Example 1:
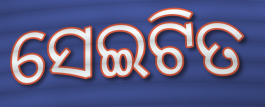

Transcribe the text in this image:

ସେଇଟିତ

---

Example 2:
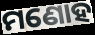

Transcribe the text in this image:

ମଣୋହ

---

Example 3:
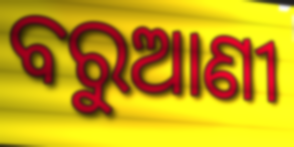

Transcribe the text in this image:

ବରୁଆଣୀ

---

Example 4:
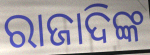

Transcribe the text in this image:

ରାଜାଦିଙ୍କ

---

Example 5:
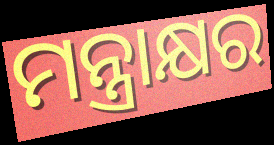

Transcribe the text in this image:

ମନ୍ତ୍ରାକ୍ଷର